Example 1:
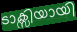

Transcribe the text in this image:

ടാക്സിയായി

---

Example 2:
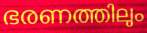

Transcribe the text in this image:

ഭരണത്തിലും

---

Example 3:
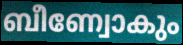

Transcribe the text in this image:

ബീണ്വോകും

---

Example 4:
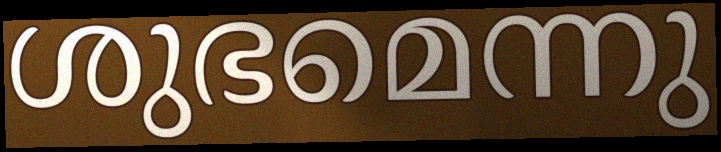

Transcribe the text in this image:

ശുഭമെന്നു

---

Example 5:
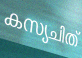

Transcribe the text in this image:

കസ്യചിത്